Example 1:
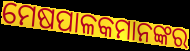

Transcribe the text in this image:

ମେଷପାଳକମାନଙ୍କର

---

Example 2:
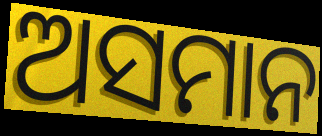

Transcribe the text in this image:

ଅସମାନ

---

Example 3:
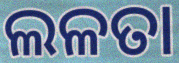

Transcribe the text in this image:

ଲଳତା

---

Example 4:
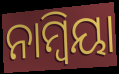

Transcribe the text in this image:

ନାମ୍ୱିୟା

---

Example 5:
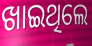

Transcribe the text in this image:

ଖାଇଥିଲେ